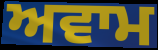
ਅਵਾਮ